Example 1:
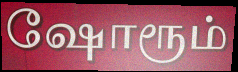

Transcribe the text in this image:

ஷோரூம்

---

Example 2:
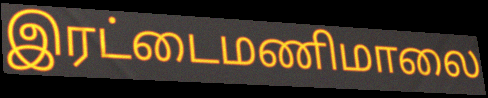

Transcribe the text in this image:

இரட்டைமணிமாலை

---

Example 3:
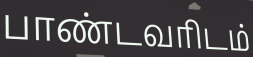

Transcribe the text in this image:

பாண்டவரிடம்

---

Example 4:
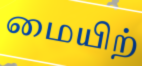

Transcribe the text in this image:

மையிற்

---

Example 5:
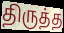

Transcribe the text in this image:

திருத்த